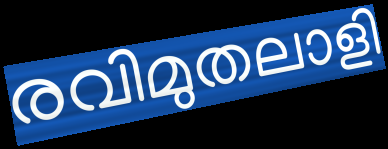
രവിമുതലാളി